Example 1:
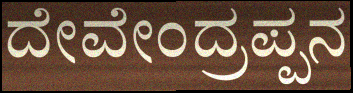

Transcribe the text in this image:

ದೇವೇಂದ್ರಪ್ಪನ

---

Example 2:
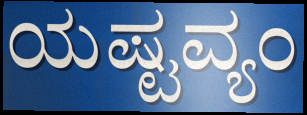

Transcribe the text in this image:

ಯಷ್ಟವ್ಯಂ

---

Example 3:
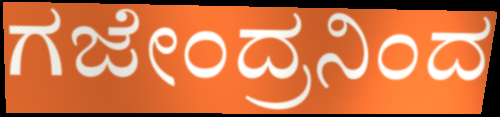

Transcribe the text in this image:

ಗಜೇಂದ್ರನಿಂದ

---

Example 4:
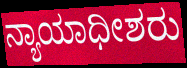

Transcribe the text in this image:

ನ್ಯಾಯಾಧೀಶರು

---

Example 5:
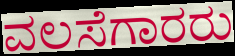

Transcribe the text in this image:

ವಲಸೆಗಾರರು